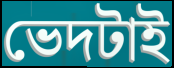
ভেদটাই